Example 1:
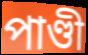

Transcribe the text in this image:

পাণ্ডী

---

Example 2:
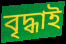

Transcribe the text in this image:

বৃদ্ধাই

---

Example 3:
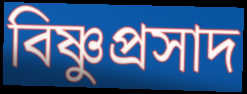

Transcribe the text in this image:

বিষ্ণুপ্ৰসাদ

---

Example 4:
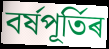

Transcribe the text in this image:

বৰ্ষপূৰ্তিৰ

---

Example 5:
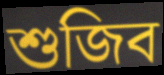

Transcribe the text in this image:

শুজিব